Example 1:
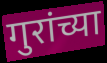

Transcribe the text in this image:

गुरांच्या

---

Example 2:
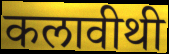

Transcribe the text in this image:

कलावीथी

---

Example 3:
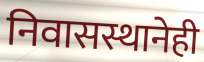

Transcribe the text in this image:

निवासस्थानेही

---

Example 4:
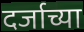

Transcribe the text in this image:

दर्जाच्या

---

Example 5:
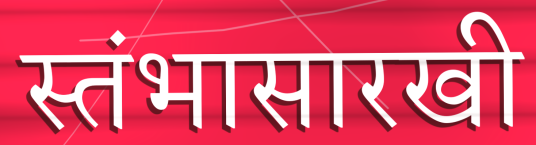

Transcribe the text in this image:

स्तंभासारखी